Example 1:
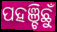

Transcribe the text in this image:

ପହଞ୍ଚିଛୁଁ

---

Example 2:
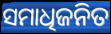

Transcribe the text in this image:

ସମାଧିଜନିତ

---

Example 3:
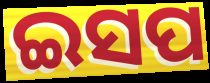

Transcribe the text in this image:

ଇସପ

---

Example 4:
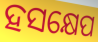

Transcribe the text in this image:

ହସକ୍ଷେପ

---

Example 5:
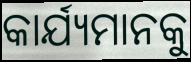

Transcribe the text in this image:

କାର୍ଯ୍ୟମାନକୁ